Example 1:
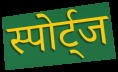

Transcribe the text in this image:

स्पोर्ट्ज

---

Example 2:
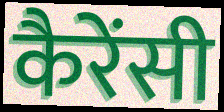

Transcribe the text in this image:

कैरेंसी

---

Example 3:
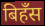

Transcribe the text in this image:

बिहँस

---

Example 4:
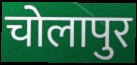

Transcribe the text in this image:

चोलापुर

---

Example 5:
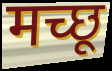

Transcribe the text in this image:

मच्छू